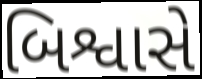
બિશ્વાસે